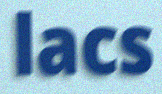
lacs